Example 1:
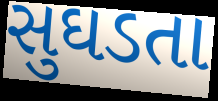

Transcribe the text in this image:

સુઘડતા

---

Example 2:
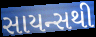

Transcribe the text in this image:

સાયન્સથી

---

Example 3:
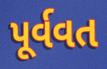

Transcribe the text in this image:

પૂર્વવત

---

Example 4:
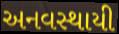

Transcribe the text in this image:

અનવસ્થાયી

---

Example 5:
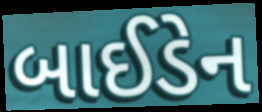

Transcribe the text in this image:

બાઈડેન